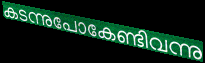
കടന്നുപോകേണ്ടിവന്നു